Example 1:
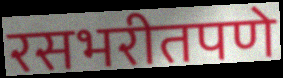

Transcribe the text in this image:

रसभरीतपणे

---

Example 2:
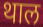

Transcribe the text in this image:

थाल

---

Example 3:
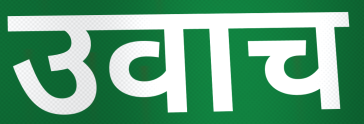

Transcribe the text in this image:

उवाच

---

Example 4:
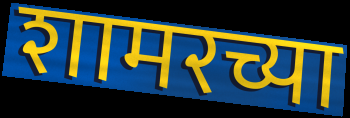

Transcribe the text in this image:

शामरच्या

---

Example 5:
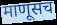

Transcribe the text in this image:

माणूसच